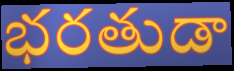
భరతుడా